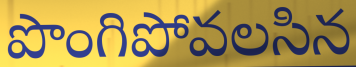
పొంగిపోవలసిన